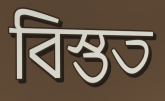
বিস্তত